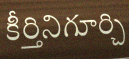
కీర్తినిగూర్చి